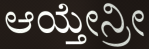
ಆಯ್ತೇನ್ರೀ